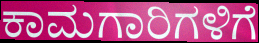
ಕಾಮಗಾರಿಗಳಿಗೆ